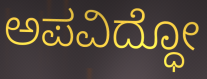
ಅಪವಿದ್ಧೋ